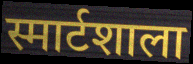
स्मार्टशाला